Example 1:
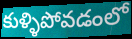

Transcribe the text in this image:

కుళ్ళిపోవడంలో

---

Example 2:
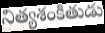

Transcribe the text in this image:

నిత్యశంకితుడు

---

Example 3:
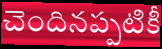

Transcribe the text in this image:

చెందినప్పటికీ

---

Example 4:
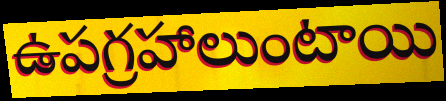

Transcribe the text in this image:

ఉపగ్రహాలుంటాయి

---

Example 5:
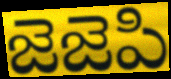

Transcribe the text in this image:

జెజెపి